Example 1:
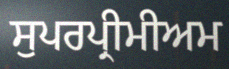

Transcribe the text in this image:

ਸੁਪਰਪ੍ਰੀਮੀਅਮ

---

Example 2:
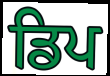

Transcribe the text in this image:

ਡਿਪ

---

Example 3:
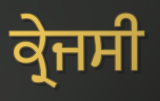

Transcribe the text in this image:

ਕ੍ਰੇਜਸੀ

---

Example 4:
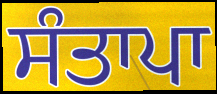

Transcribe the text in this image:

ਸੰਤਾਪਾ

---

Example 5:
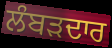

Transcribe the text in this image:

ਲੰਬੜਦਾਰ